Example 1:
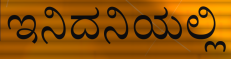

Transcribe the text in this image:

ಇನಿದನಿಯಲ್ಲಿ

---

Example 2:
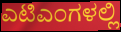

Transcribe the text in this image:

ಎಟಿಎಂಗಳಲ್ಲಿ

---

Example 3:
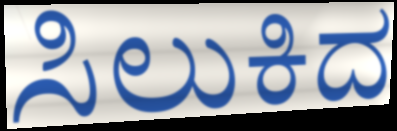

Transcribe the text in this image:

ಸಿಲುಕಿದ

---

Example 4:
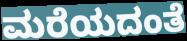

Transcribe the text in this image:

ಮರೆಯದಂತೆ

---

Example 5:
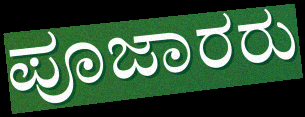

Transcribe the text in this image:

ಪೂಜಾರರು